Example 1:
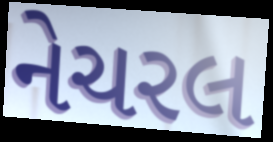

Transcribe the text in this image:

નેચરલ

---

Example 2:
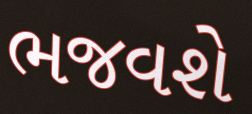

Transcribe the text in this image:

ભજવશે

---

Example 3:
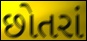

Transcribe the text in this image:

છોતરાં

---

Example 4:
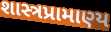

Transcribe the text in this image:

શાસ્ત્રપ્રામાણ્ય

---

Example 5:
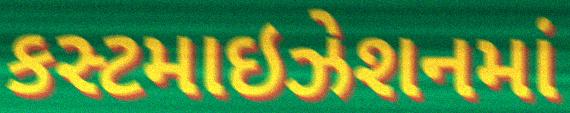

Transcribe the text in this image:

કસ્ટમાઇઝેશનમાં